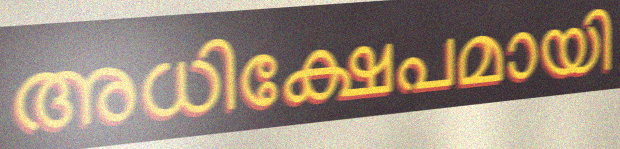
അധിക്ഷേപമായി